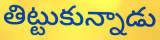
తిట్టుకున్నాడు